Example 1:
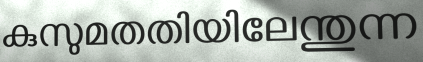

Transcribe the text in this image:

കുസുമതതിയിലേന്തുന്ന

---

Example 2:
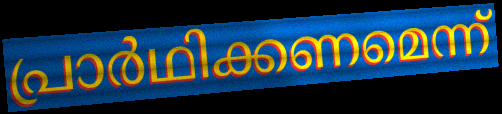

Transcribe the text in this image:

പ്രാർഥിക്കണമെന്ന്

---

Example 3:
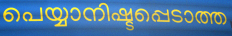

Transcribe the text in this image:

പെയ്യാനിഷ്ടപ്പെടാത്ത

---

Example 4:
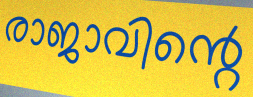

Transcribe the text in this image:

രാജാവിന്റെ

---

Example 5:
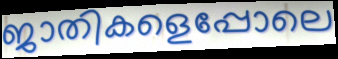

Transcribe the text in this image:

ജാതികളെപ്പോലെ